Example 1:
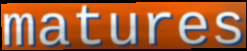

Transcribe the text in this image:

matures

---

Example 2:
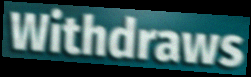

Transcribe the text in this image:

Withdraws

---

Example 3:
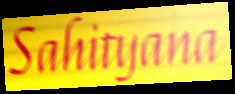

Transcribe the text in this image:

Sahityana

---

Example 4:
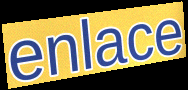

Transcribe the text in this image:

enlace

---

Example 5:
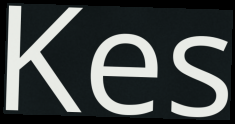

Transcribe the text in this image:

Kes